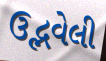
ઉદ્ભવેલી